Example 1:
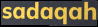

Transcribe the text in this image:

sadaqah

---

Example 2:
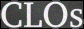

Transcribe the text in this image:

CLOs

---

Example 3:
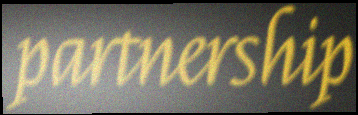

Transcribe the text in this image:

partnership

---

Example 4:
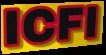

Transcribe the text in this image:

ICFI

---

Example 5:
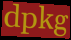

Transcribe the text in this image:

dpkg